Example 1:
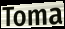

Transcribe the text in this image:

Toma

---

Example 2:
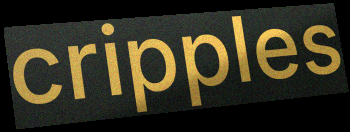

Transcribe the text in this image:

cripples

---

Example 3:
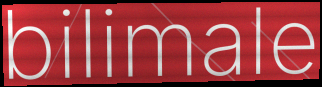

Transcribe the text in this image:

bilimale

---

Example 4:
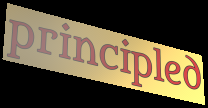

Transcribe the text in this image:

principled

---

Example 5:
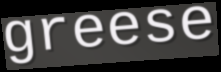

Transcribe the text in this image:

greese